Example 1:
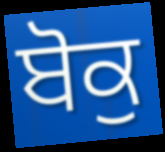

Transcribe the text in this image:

ਬੋਕੁ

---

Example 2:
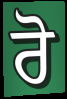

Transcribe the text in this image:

ਰੋ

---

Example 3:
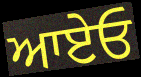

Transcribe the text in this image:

ਆਏਓ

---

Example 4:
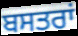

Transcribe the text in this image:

ਬਸਤਰਾਂ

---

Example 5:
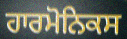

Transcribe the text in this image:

ਹਾਰਮੋਨਿਕਸ